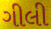
ગીલી